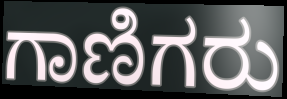
ಗಾಣಿಗರು